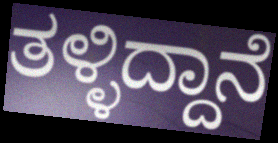
ತಳ್ಳಿದ್ದಾನೆ